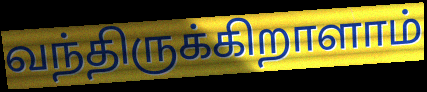
வந்திருக்கிறாளாம்